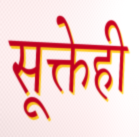
सूक्तेही